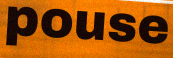
pouse